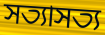
সত্যাসত্য